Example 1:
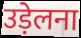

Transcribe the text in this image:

उड़ेलना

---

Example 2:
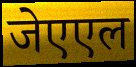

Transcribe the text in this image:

जेएएल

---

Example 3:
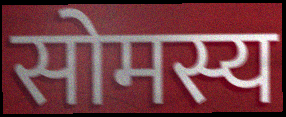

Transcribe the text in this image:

सोमस्य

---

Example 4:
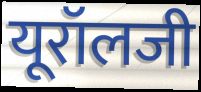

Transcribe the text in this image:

यूरॉलजी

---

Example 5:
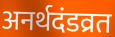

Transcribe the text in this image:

अनर्थदंडव्रत